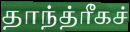
தாந்த்ரீகச்